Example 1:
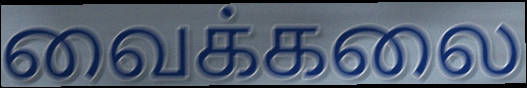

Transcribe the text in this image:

வைக்கலை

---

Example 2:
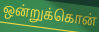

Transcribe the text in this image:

ஒன்றுக்கொன்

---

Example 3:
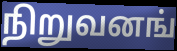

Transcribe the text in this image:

நிறுவனங்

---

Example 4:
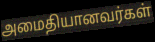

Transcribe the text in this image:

அமைதியானவர்கள்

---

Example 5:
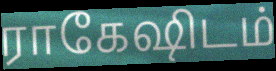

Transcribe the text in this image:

ராகேஷிடம்